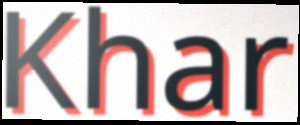
Khar